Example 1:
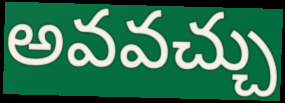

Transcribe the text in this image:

అవవచ్చు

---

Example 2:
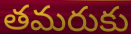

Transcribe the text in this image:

తమరుకు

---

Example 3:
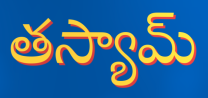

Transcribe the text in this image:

తస్యామ్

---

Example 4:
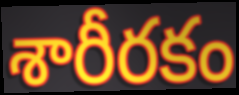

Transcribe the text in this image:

శారీరకం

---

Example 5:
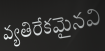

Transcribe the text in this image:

వ్యతిరేకమైనవి